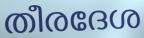
തീരദേശ